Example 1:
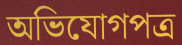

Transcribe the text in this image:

অভিযোগপত্র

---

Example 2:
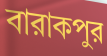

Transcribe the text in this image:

বারাকপুর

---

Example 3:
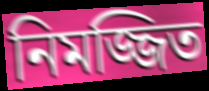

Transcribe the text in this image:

নিমজ্জিত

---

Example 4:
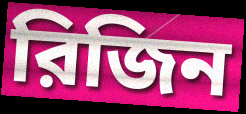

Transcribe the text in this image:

রিজিন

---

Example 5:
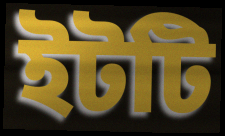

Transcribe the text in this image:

ইটটি